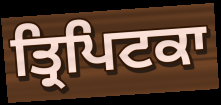
ਤ੍ਰਿਪਿਟਕਾ